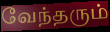
வேந்தரும்